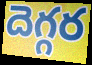
దెగ్గర